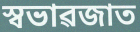
স্বভাৱজাত